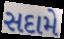
સદામે